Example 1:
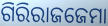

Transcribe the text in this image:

ଗିରିରାଜଜେମା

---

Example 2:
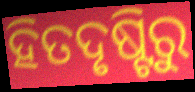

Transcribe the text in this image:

ହିତଦୃଷ୍ଟିରୁ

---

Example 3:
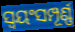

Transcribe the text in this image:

ସ୍ବୟଂସମ୍ପୂର୍ଣ୍ଣ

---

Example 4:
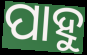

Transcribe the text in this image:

ପାହୁ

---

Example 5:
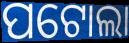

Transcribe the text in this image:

ପଟୋଲା